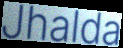
Jhalda